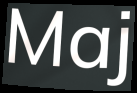
Maj